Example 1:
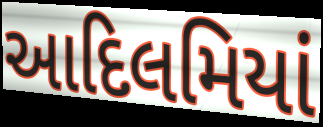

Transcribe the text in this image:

આદિલમિયાં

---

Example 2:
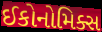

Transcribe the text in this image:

ઈકોનોમિક્સ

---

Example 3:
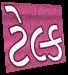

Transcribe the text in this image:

ટેલ્ક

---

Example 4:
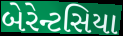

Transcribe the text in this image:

બેરેન્ટસિયા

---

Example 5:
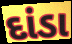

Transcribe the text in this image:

દાંડા